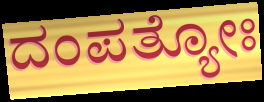
ದಂಪತ್ಯೋಃ